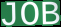
JOB